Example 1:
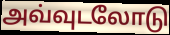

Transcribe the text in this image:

அவ்வுடலோடு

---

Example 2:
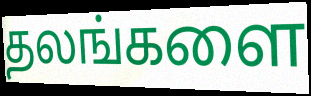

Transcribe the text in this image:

தலங்களை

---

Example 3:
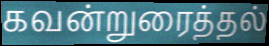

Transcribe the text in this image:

கவன்றுரைத்தல்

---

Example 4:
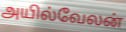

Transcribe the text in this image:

அயில்வேலன்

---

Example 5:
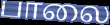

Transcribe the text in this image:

பாலை